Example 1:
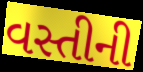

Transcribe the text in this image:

વસ્તીની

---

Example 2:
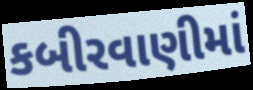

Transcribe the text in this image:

કબીરવાણીમાં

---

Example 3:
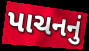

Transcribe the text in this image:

પાચનનું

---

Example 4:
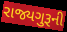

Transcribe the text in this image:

રાજ્યગુરૂની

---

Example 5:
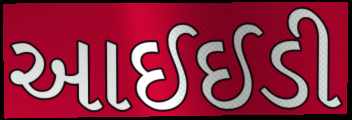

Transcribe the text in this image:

આઈઈડી